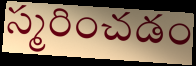
స్మరించడం